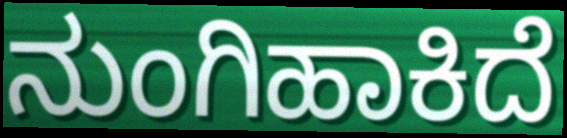
ನುಂಗಿಹಾಕಿದೆ